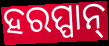
ହରପ୍ପାନ୍